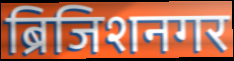
ब्रिजिशनगर